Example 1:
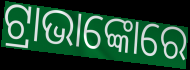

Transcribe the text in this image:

ଟ୍ରାଭାଙ୍କୋରେ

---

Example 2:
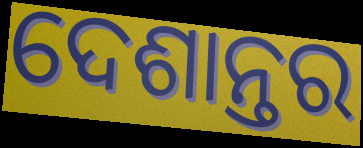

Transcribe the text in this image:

ଦେଶାନ୍ତର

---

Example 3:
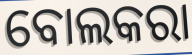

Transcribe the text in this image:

ବୋଲକରା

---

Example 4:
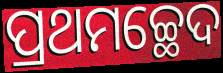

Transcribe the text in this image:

ପ୍ରଥମଚ୍ଛେଦ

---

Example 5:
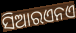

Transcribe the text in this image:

ସିଆରଏନଏ